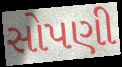
સોપણી